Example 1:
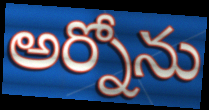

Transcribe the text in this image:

అర్నోను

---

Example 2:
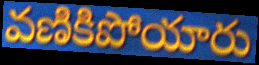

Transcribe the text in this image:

వణికిపోయారు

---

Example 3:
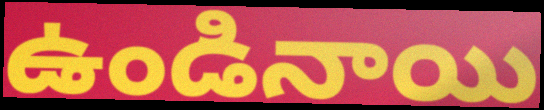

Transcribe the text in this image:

ఉండినాయి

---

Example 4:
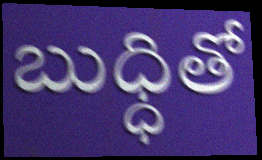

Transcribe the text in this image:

బుధ్ధితో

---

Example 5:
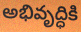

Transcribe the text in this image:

అభివృద్ధికి